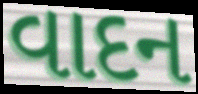
વાદન